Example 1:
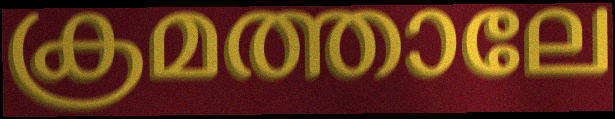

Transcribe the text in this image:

ക്രമത്താലേ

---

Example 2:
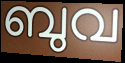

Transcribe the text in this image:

ബുവ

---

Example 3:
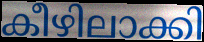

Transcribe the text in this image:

കീഴിലാക്കി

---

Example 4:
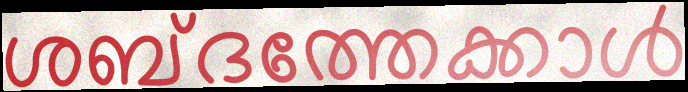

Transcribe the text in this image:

ശബ്ദത്തേക്കാൾ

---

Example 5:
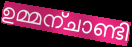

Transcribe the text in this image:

ഉമ്മന്ചാണ്ടി